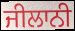
ਜੀਲਾਨੀ